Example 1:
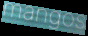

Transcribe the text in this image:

mangos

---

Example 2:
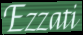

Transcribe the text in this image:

Ezzati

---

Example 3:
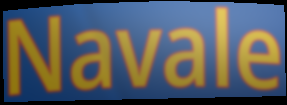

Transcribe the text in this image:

Navale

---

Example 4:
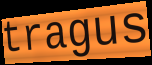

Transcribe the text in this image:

tragus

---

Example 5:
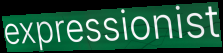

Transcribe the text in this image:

expressionist